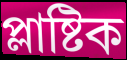
প্লাষ্টিক